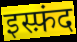
इस्फ़ंद